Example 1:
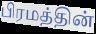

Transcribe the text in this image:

பிரமத்தின்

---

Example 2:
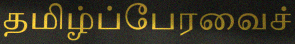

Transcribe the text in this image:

தமிழ்ப்பேரவைச்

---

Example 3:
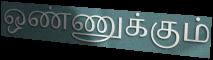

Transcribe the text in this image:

ஒண்ணுக்கும்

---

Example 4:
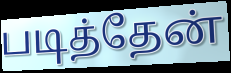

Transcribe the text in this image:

படித்தேன்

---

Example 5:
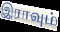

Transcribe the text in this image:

இராவும்